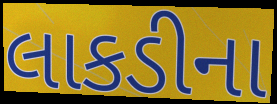
લાકડીના